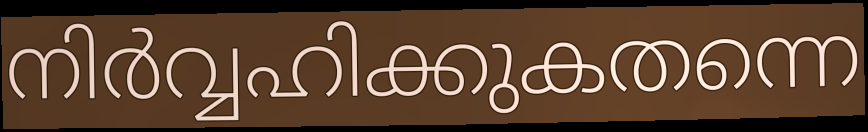
നിർവ്വഹിക്കുകതന്നെ